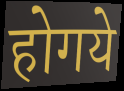
होगये